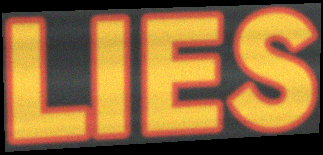
LIES